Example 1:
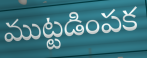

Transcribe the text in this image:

ముట్టడింపక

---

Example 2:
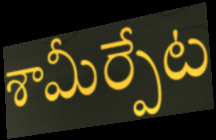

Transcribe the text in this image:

శామీర్పేట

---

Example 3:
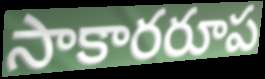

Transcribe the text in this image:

సాకారరూప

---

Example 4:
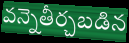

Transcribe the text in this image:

వన్నెతీర్చబడిన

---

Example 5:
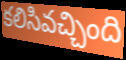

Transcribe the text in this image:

కలిసివచ్చింది